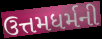
ઉત્તમધર્મની